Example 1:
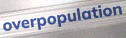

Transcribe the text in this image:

overpopulation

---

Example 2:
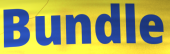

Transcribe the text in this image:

Bundle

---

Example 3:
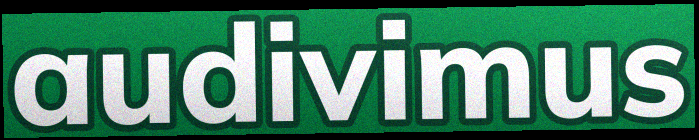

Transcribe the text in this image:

audivimus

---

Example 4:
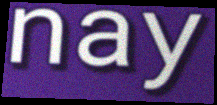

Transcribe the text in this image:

nay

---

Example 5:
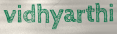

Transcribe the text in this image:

vidhyarthi